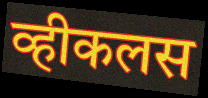
व्हीकलस